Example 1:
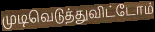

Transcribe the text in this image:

முடிவெடுத்துவிட்டோம்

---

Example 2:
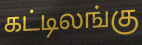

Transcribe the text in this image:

கட்டிலங்கு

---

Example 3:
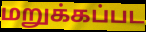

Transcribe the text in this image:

மறுக்கப்பட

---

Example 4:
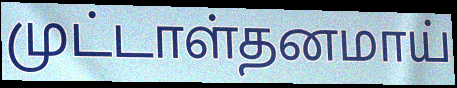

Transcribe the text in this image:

முட்டாள்தனமாய்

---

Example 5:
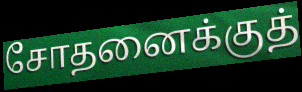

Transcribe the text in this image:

சோதனைக்குத்